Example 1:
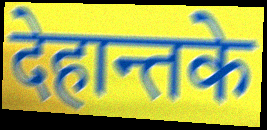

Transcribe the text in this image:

देहान्तके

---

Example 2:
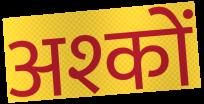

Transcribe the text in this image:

अश्कों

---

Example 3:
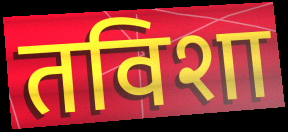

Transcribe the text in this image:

तविशा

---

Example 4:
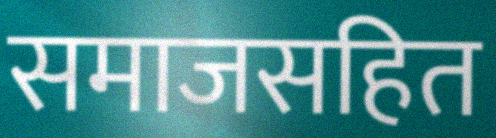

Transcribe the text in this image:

समाजसहित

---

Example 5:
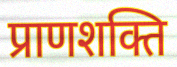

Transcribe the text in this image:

प्राणशक्ति